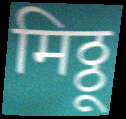
मिठ्ठू